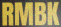
RMBK